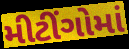
મીટીંગોમાં